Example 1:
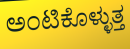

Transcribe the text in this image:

ಅಂಟಿಕೊಳ್ಳುತ್ತ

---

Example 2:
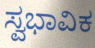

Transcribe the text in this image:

ಸ್ವಭಾವಿಕ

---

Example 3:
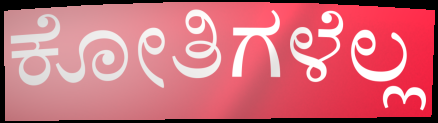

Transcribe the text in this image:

ಕೋತಿಗಳೆಲ್ಲ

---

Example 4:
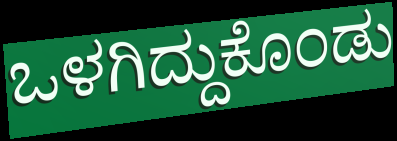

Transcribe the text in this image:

ಒಳಗಿದ್ದುಕೊಂಡು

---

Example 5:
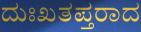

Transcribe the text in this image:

ದುಃಖತಪ್ತರಾದ